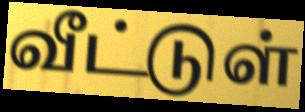
வீட்டுள்